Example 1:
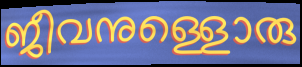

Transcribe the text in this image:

ജീവനുള്ളൊരു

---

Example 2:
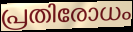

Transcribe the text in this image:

പ്രതിരോധം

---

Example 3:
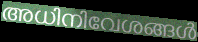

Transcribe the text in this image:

അധിനിവേശങ്ങൾ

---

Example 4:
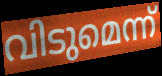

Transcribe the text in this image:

വിടുമെന്ന്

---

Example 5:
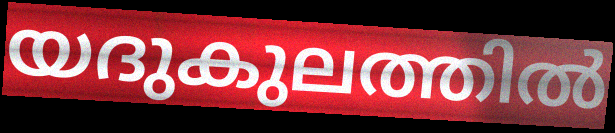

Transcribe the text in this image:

യദുകുലത്തിൽ